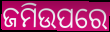
ଜମିଉପରେ